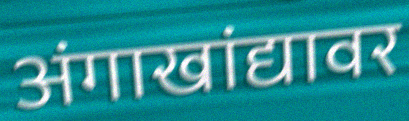
अंगाखांद्यावर